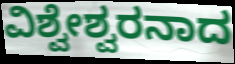
ವಿಶ್ವೇಶ್ವರನಾದ